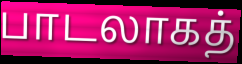
பாடலாகத்